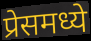
प्रेसमध्ये